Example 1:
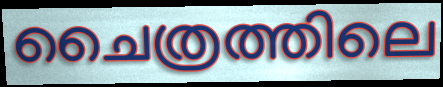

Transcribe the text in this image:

ചൈത്രത്തിലെ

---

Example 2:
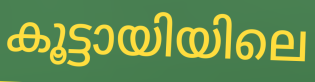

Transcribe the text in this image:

കൂട്ടായിയിലെ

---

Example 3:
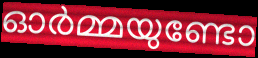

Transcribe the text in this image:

ഓർമ്മയുണ്ടോ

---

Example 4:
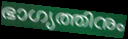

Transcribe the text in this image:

ഭാഗ്യത്തിനും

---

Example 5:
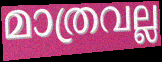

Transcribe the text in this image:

മാത്രവല്ല